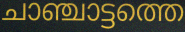
ചാഞ്ചാട്ടത്തെ